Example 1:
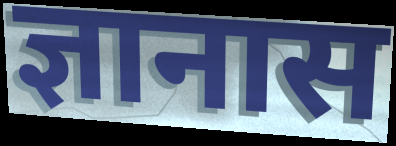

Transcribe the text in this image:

ज्ञानास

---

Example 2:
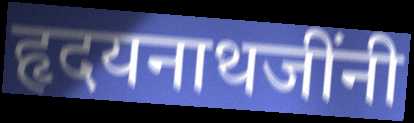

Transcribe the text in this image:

हृदयनाथजींनी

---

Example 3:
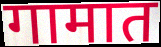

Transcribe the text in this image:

गामात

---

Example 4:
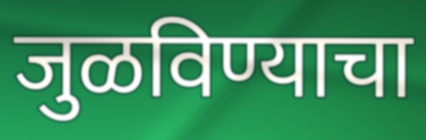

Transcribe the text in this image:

जुळविण्याचा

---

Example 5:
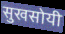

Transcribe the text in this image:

सुखसोयी